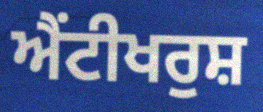
ਐਂਟੀਖਰੁਸ਼